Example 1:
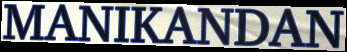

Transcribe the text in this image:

MANIKANDAN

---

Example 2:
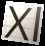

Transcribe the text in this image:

Xl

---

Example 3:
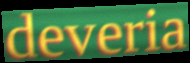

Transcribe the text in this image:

deveria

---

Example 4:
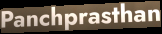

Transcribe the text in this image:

Panchprasthan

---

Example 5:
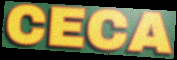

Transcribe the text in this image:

CECA